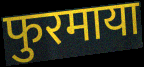
फुरमाया